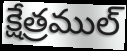
క్షేత్రముల్